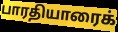
பாரதியாரைக்